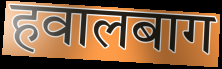
हवालबाग